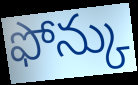
ఫోన్కు